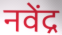
नवेंद्र